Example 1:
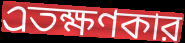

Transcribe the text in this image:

এতক্ষণকার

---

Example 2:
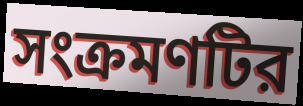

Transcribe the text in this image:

সংক্রমণটির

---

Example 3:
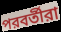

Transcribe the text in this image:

পরবর্তীরা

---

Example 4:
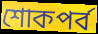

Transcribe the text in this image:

শোকপর্ব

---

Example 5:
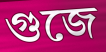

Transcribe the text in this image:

গুজে